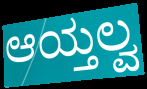
ಆಯ್ತಲ್ವ